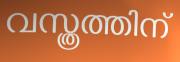
വസ്ത്രത്തിന്